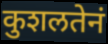
कुशलतेनं